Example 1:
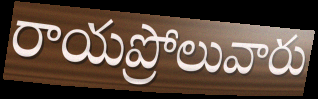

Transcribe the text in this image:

రాయప్రోలువారు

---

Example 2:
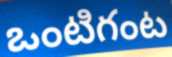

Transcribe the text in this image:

ఒంటిగంట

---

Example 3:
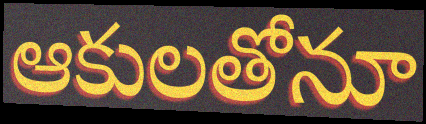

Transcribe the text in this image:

ఆకులతోనూ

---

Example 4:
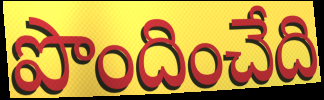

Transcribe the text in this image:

పొందించేది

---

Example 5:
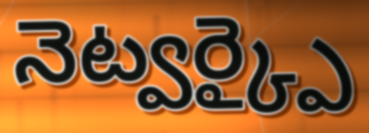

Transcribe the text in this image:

నెట్వర్క్పై